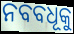
ନବବଧୂକୁ